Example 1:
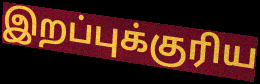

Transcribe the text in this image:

இறப்புக்குரிய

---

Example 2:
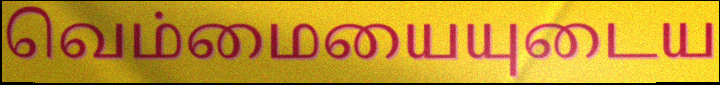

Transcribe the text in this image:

வெம்மையையுடைய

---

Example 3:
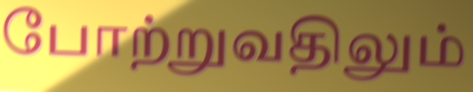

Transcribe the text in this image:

போற்றுவதிலும்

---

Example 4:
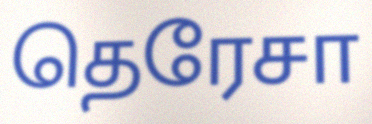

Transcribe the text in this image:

தெரேசா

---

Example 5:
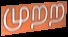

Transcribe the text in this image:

முறற